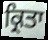
ਕ੍ਰਿਤਾ